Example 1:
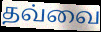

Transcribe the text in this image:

தவ்வை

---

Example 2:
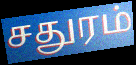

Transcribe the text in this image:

சதுரம்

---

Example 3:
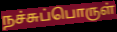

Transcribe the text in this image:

நச்சுப்பொருள்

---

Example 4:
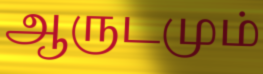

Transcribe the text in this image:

ஆருடமும்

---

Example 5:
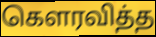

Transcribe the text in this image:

கெளரவித்த